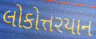
લોકોત્તરયાન